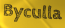
Byculla